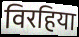
विरहिया